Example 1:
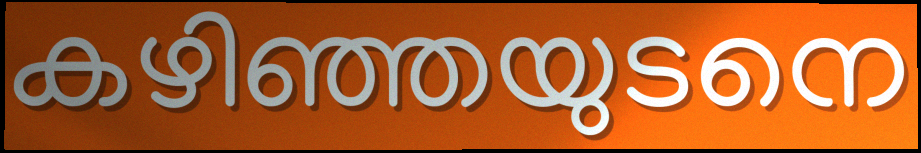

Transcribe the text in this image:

കഴിഞ്ഞയുടനെ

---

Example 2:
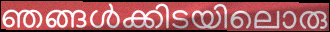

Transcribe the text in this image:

ഞങ്ങൾക്കിടയിലൊരു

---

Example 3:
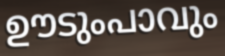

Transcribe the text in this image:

ഊടുംപാവും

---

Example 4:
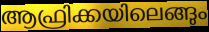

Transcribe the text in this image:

ആഫ്രിക്കയിലെങ്ങും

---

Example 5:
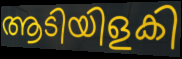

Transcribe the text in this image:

ആടിയിളകി